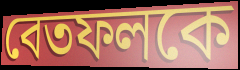
বেতফলকে